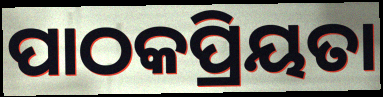
ପାଠକପ୍ରିୟତା